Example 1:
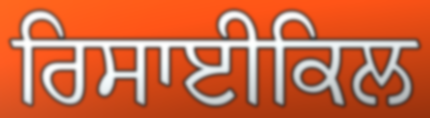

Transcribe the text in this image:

ਰਿਸਾਈਕਿਲ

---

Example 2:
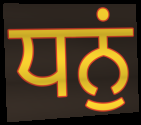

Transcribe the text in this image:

ਧਨੁਂ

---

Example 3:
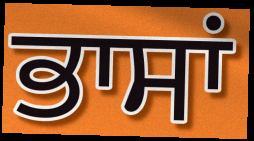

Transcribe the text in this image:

ਭਾਸਾਂ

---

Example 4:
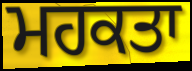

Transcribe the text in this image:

ਮਹਕਤਾ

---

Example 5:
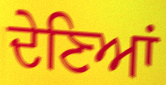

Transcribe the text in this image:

ਦੇਣਿਆਂ